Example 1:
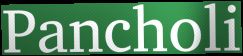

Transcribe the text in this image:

Pancholi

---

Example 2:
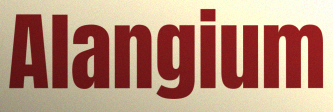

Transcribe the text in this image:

Alangium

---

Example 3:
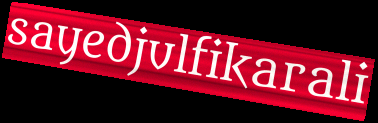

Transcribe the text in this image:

sayedjulfikarali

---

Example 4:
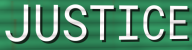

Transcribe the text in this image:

JUSTICE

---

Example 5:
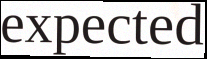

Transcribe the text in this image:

expected